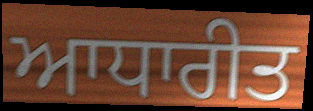
ਆਧਾਰੀਤ